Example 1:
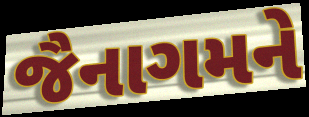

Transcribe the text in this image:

જૈનાગમને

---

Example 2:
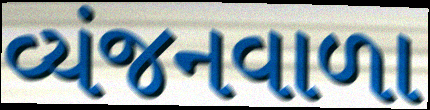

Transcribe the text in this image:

વ્યંજનવાળા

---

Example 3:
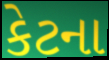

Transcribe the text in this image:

કેટના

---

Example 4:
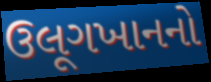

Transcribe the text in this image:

ઉલૂગખાનનો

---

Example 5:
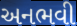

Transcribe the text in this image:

અનભવી